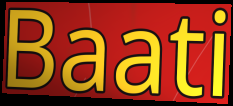
Baati